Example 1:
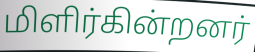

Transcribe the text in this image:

மிளிர்கின்றனர்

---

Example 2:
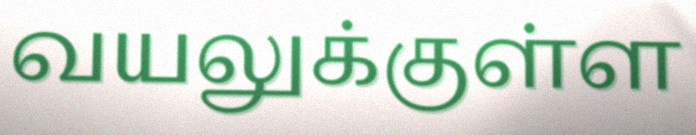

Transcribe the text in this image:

வயலுக்குள்ள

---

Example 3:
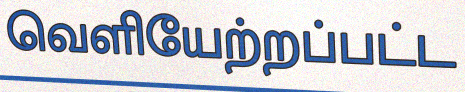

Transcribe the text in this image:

வெளியேற்றப்பட்ட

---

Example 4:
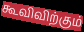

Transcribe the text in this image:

கூவிவிற்கும்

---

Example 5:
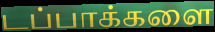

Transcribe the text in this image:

டப்பாக்களை